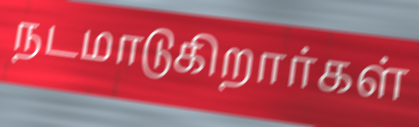
நடமாடுகிறார்கள்